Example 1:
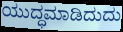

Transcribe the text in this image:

ಯುದ್ಧಮಾಡಿದುದು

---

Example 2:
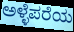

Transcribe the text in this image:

ಅಳ್ಳೆಪರೆಯ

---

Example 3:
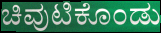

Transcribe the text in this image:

ಚಿವುಟಿಕೊಂಡು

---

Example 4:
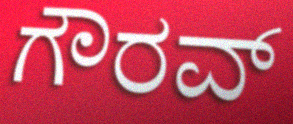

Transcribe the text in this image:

ಗೌರವ್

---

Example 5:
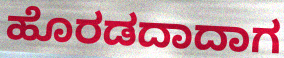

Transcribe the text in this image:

ಹೊರಡದಾದಾಗ